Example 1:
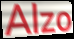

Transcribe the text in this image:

Alzo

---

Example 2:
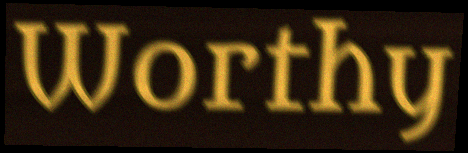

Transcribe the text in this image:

Worthy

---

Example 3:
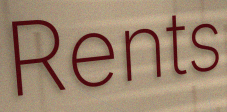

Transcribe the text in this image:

Rents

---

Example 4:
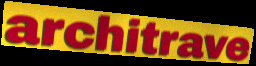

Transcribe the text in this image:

architrave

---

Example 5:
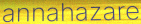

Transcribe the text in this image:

annahazare